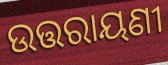
ଉତ୍ତରାୟଣୀ